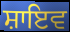
ਸ਼ਾਇਵ